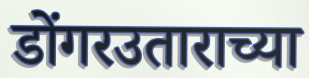
डोंगरउताराच्या